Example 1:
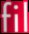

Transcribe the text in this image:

fil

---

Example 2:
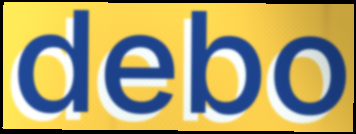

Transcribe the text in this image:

debo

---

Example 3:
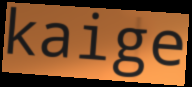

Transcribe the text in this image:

kaige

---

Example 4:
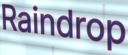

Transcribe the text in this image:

Raindrop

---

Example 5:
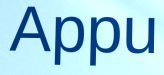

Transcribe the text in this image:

Appu